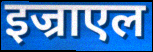
इज्राएल